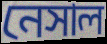
নেসাল